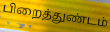
பிறைத்துண்டம்